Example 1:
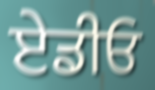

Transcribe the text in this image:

ਏਡੀਓ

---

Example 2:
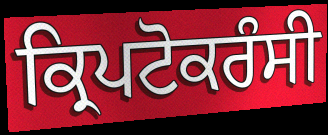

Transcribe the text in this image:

ਕ੍ਰਿਪਟੋਕਰੰਸੀ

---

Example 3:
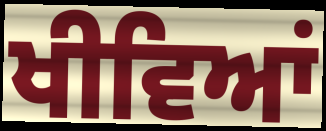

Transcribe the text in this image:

ਖੀਵਿਆਂ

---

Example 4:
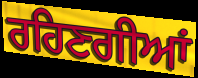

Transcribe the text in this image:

ਰਹਿਣਗੀਆਂ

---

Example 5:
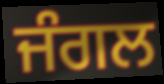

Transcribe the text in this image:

ਜੰਗਲ